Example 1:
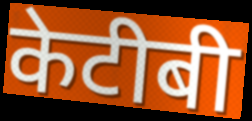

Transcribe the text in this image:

केटीबी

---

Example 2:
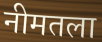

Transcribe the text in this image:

नीमतला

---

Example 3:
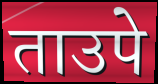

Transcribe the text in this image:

ताउपे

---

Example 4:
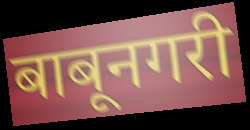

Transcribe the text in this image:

बाबूनगरी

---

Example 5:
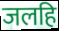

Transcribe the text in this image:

जलहि